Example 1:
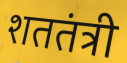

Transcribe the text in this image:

शततंत्री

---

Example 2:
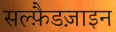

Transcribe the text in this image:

सल्फ़ैडज़ाइन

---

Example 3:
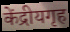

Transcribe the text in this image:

केंद्रीयगृह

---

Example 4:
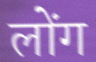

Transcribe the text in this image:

लोंग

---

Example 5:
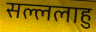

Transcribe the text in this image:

सल्ललाहु